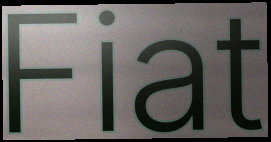
Fiat